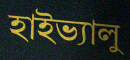
হাইভ্যালু